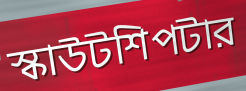
স্কাউটশিপটার